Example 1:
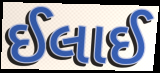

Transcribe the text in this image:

ઈલાઈ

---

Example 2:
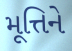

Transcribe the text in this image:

મૂત્તિને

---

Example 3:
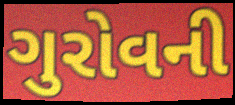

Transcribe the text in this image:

ગુરોવની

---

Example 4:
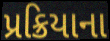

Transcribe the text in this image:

પ્રક્રિયાના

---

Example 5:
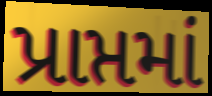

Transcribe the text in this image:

પ્રાપ્તમાં